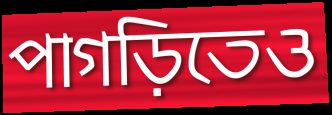
পাগড়িতেও